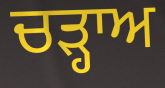
ਚੜ੍ਹਾਅ